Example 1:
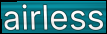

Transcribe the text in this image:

airless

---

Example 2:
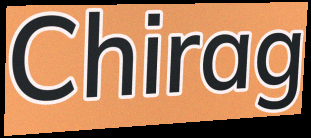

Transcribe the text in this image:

Chirag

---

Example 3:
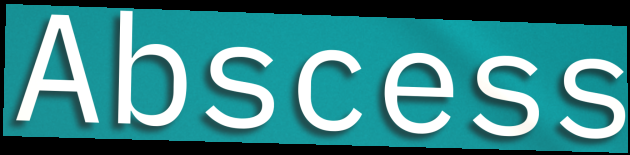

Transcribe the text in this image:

Abscess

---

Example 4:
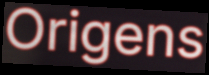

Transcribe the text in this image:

Origens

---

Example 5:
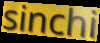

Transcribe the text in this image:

sinchi